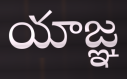
యాజ్ఞ